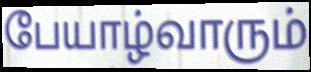
பேயாழ்வாரும்